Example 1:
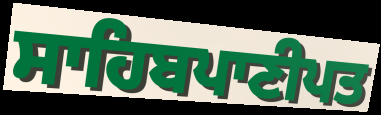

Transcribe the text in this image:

ਸਾਹਿਬਪਾਣੀਪਤ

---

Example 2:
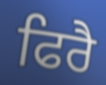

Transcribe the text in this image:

ਫਿਰੈ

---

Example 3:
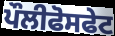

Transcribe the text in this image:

ਪੌਲੀਫੋਸਫੇਟ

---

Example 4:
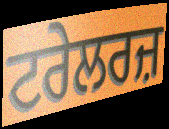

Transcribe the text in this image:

ਟਰੇਲਰਜ਼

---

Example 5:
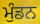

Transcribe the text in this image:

ਮੁੰਡਨ